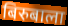
बिरुबाला